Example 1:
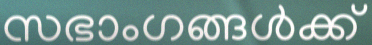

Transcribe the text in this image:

സഭാംഗങ്ങൾക്ക്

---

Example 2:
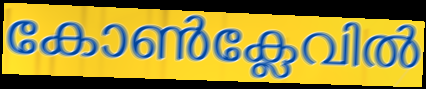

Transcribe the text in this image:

കോൺക്ലേവിൽ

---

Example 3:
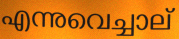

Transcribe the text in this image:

എന്നുവെച്ചാല്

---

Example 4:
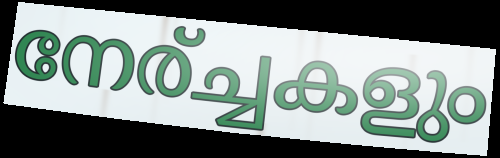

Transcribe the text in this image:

നേര്ച്ചകളും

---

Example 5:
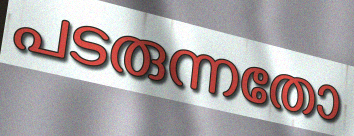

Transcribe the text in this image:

പടരുന്നതോ